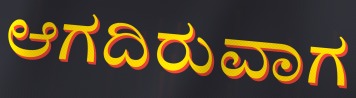
ಆಗದಿರುವಾಗ